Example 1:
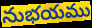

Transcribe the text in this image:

నుభయము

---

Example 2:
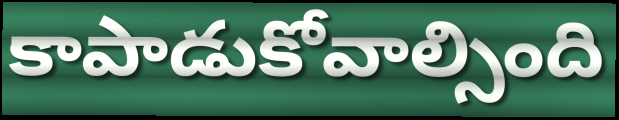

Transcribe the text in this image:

కాపాడుకోవాల్సింది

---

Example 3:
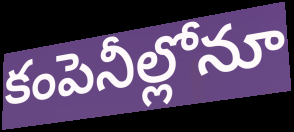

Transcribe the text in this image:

కంపెనీల్లోనూ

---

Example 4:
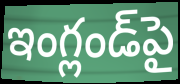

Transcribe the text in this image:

ఇంగ్లండ్‌పై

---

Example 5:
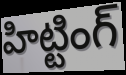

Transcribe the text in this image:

హిట్టింగ్